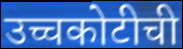
उच्चकोटीची